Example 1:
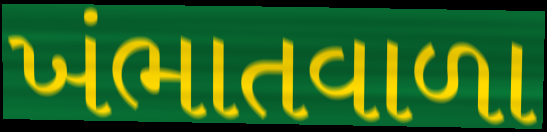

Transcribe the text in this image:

ખંભાતવાળા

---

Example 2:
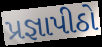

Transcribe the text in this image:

પ્રજ્ઞાપીઠો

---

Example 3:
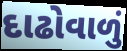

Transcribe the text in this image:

દાઢોવાળું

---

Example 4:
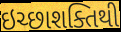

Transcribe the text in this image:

ઇચ્છાશક્તિથી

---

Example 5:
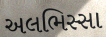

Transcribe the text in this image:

અલભિસ્સા